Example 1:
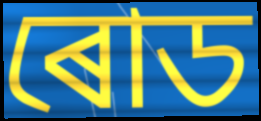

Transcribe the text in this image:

ৰোড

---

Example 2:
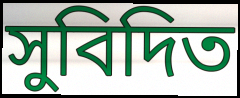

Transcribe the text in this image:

সুবিদিত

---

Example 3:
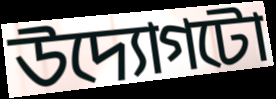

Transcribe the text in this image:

উদ্যোগটো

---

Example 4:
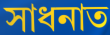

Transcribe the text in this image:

সাধনাত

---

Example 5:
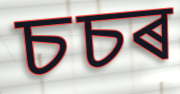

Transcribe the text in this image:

চচৰ